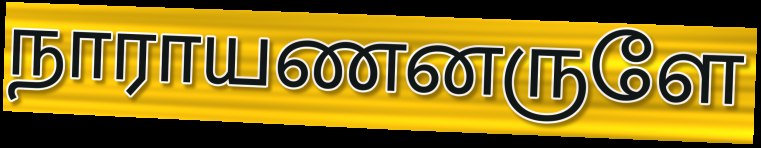
நாராயணனருளே